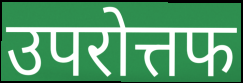
उपरोत्तफ